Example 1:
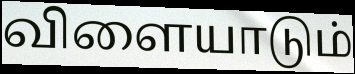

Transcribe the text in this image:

விளையாடும்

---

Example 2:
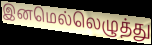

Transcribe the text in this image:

இனமெல்லெழுத்து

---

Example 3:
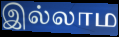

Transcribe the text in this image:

இல்லாம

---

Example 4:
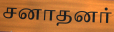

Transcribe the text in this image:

சனாதனர்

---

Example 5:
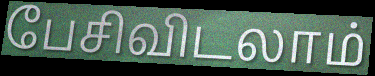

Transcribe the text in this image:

பேசிவிடலாம்